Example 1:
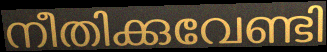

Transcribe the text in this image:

നീതിക്കുവേണ്ടി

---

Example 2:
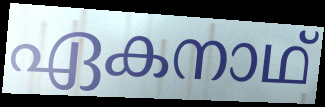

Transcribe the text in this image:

ഏകനാഥ്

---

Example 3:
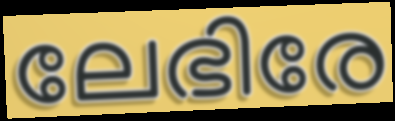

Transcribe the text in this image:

ലേഭിരേ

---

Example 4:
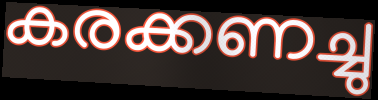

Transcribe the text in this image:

കരക്കണച്ചു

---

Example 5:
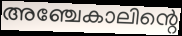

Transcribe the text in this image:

അഞ്ചേകാലിന്റെ